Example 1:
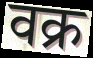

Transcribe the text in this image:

वक्र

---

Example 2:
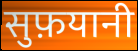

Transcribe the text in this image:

सुफ़यानी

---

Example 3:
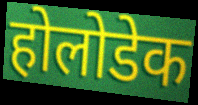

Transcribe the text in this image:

होलोडेक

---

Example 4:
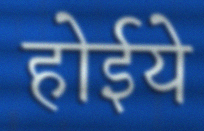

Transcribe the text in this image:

होईये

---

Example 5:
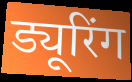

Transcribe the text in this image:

ड्यूरिंग